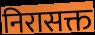
निरासक्त